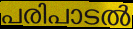
പരിപാടൽ